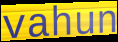
vahun